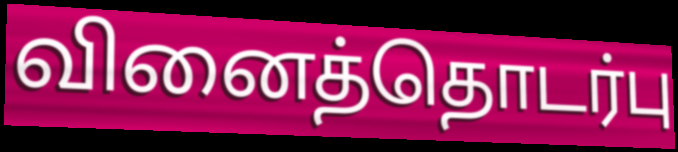
வினைத்தொடர்பு